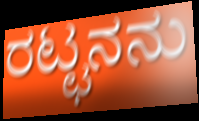
ರಟ್ಟನನು